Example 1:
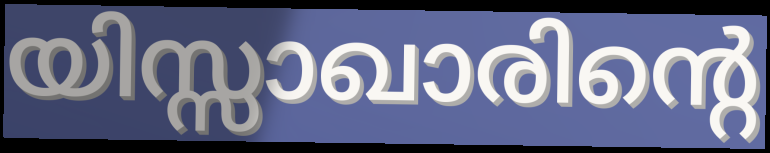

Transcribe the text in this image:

യിസ്സാഖാരിന്റെ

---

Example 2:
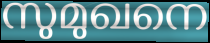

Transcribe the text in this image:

സുമുഖനെ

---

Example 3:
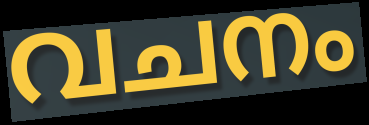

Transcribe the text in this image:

വചനം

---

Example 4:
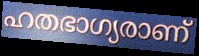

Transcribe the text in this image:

ഹതഭാഗ്യരാണ്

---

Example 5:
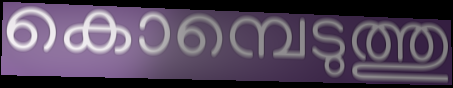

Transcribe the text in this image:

കൊമ്പെടുത്തു